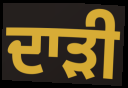
ਦਾੜੀ